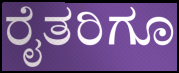
ರೈತರಿಗೂ